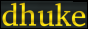
dhuke